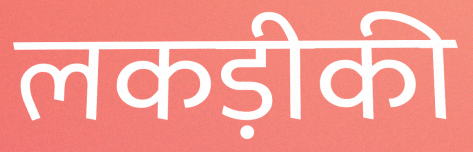
लकड़ीकी